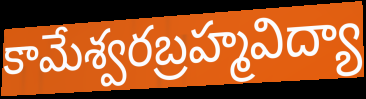
కామేశ్వరబ్రహ్మవిద్యా